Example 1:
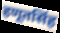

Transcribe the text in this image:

हणूतसिंह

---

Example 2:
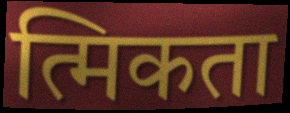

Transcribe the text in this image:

त्मिकता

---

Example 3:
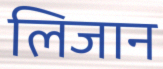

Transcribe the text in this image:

लिजान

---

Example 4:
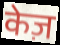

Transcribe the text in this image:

केज़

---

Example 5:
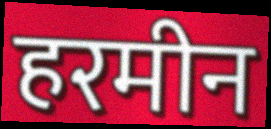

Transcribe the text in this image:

हरमीन